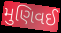
મુણિવઈ